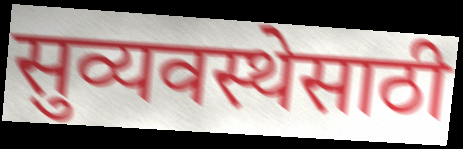
सुव्यवस्थेसाठी